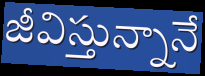
జీవిస్తున్నానే